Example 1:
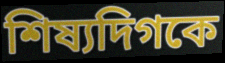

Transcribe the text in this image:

শিষ্যদিগকে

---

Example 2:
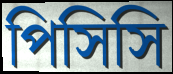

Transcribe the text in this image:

পিসিসি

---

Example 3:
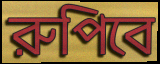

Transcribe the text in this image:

রুপিবে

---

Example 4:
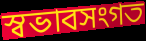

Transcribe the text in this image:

স্বভাবসংগত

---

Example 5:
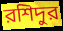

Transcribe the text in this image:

রশিদুর